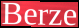
Berze